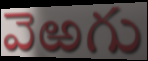
వెఱగు